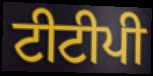
ਟੀਟੀਪੀ